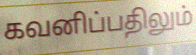
கவனிப்பதிலும்